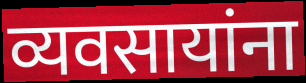
व्यवसायांना